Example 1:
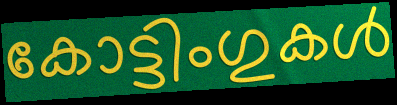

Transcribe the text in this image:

കോട്ടിംഗുകൾ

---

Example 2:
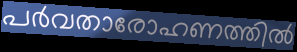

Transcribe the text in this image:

പർവതാരോഹണത്തിൽ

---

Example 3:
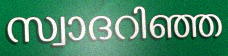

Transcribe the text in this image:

സ്വാദറിഞ്ഞ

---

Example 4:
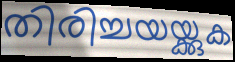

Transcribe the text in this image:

തിരിച്ചയയ്ക്കുക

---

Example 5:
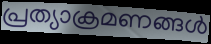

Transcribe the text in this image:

പ്രത്യാക്രമണങ്ങൾ